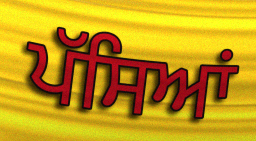
ਪੱਸਿਆਂ